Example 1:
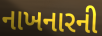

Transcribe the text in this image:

નાખનારની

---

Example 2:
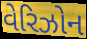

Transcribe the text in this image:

વેરિઝોન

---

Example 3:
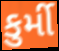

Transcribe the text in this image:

કુર્મી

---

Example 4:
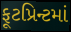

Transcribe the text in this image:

ફૂટપ્રિન્ટમાં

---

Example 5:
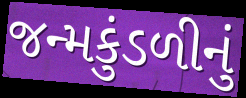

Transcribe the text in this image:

જન્મકુંડળીનું